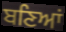
ਬਣਿਆਂ